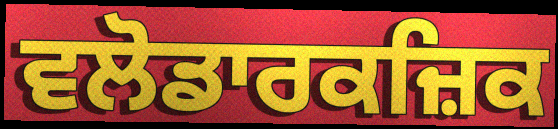
ਵਲੋਡਾਰਕਜ਼ਿਕ